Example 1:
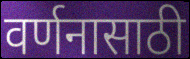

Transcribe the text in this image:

वर्णनासाठी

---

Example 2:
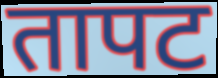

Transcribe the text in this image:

तापट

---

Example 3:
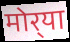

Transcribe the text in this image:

मोर्‍या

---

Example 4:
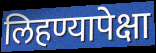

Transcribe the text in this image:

लिहण्यापेक्षा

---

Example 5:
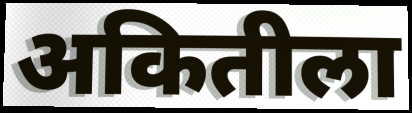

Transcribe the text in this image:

अकितीला